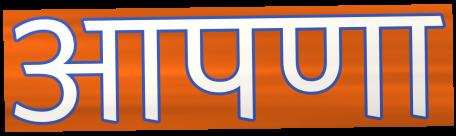
आपणा